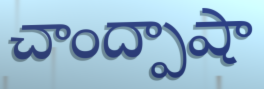
చాంద్పాషా